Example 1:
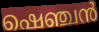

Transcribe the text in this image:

ഷെഞ്ചൻ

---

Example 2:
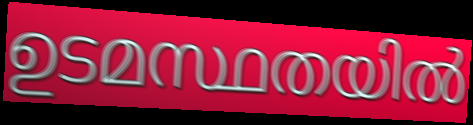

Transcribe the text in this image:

ഉടമസ്ഥതയിൽ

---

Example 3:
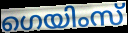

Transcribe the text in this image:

ഗെയിംസ്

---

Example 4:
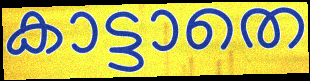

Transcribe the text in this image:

കാട്ടാതെ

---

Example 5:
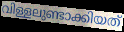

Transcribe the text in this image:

വിള്ളലുണ്ടാക്കിയത്